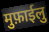
मुफ़ाईलु